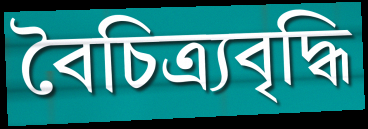
বৈচিত্র্যবৃদ্ধি